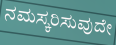
ನಮಸ್ಕರಿಸುವುದೇ